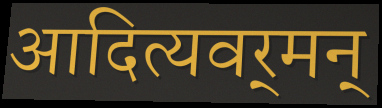
आदित्यवर्मन्